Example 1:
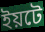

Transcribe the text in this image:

ইয়টে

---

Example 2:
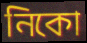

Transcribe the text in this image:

নিকো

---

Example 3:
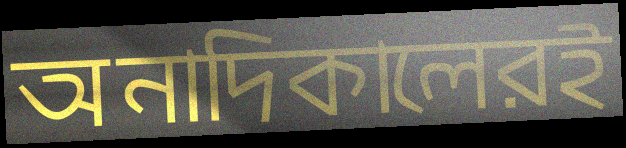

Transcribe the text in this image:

অনাদিকালেরই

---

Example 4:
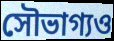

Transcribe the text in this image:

সৌভাগ্যও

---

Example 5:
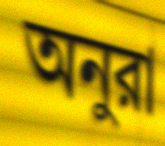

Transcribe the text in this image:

অনুরা